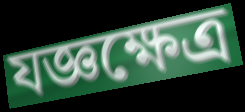
যজ্ঞক্ষেত্র